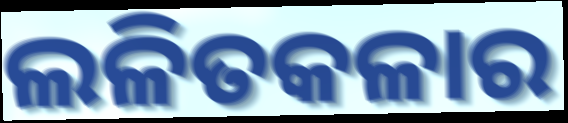
ଲଳିତକଳାର